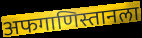
अफगाणिस्तानला